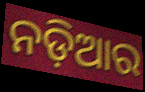
ନଡ଼ିଆର